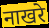
नाखरे